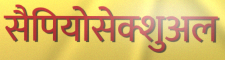
सैपियोसेक्शुअल